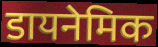
डायनेमिक